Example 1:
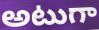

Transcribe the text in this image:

అటుగా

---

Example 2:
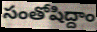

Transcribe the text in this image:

సంతోషిద్దాం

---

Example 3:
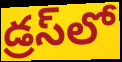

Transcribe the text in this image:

డ్రస్‌లో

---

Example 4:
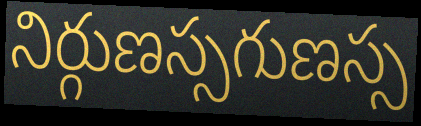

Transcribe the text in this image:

నిర్గుణస్సగుణస్స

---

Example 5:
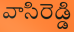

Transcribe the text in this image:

వాసిరెడ్డి